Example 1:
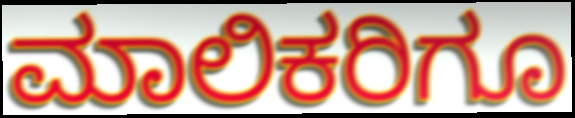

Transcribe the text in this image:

ಮಾಲಿಕರಿಗೂ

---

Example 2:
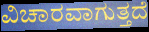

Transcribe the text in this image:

ವಿಚಾರವಾಗುತ್ತದೆ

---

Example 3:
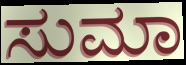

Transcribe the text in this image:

ಸುಮಾ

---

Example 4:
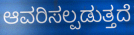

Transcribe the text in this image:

ಆವರಿಸಲ್ಪಡುತ್ತದೆ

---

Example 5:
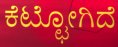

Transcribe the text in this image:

ಕೆಟ್ಟೋಗಿದೆ